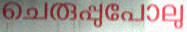
ചെരുപ്പുപോലു